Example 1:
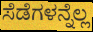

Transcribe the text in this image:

ಸೆಡೆಗಳನ್ನೆಲ್ಲ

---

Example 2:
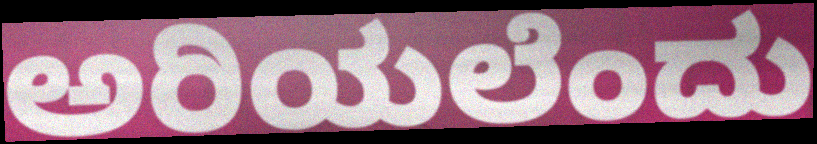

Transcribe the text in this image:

ಅರಿಯಲೆಂದು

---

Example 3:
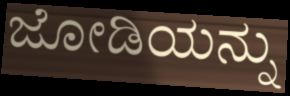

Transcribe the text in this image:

ಜೋಡಿಯನ್ನು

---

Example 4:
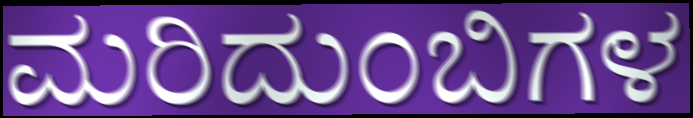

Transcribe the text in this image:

ಮರಿದುಂಬಿಗಳ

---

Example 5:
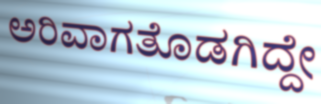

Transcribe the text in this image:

ಅರಿವಾಗತೊಡಗಿದ್ದೇ